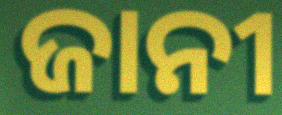
ଜାନୀ